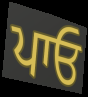
ਪਾਓ